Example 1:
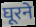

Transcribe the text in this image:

घूरने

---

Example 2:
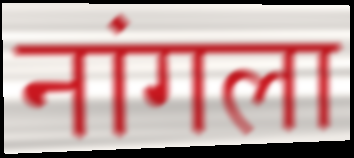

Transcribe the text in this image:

नांगला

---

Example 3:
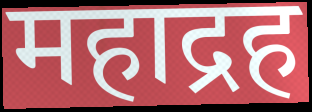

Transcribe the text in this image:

महाद्रह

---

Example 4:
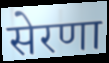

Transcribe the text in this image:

सेरणा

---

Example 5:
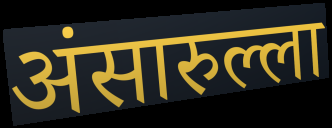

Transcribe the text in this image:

अंसारुल्ला